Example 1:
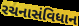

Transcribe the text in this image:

રચનાસંવિધાન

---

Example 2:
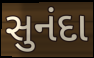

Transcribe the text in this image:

સુનંદા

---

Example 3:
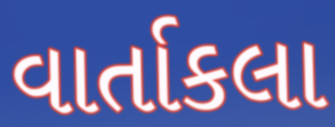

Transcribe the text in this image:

વાર્તાકલા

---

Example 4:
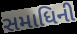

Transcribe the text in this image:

સમાધિની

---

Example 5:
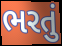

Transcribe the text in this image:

ભરતું